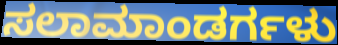
ಸಲಾಮಾಂಡರ್ಗಳು